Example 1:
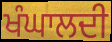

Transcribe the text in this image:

ਖੰਘਾਲਦੀ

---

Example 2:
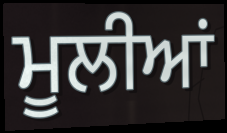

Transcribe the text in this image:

ਮੂਲੀਆਂ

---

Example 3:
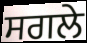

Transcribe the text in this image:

ਸਗਲੇ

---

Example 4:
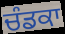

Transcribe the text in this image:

ਚੰਡਕਾ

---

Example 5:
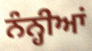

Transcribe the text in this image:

ਨੰਨ੍ਹੀਆਂ